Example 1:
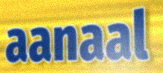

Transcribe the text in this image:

aanaal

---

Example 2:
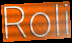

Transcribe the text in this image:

Roli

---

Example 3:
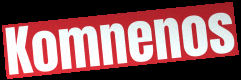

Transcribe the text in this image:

Komnenos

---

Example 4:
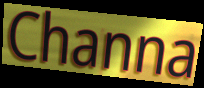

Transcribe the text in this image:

Channa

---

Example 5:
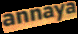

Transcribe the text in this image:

annaya